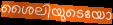
ശൈലിയുടെയോ